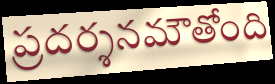
ప్రదర్శనమౌతోంది